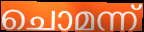
ചൊമന്ന്